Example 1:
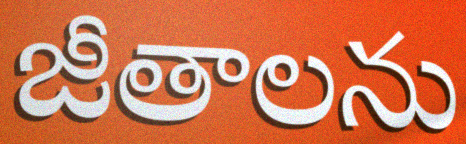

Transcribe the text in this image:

జీతాలను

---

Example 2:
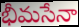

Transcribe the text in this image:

భీమసేనా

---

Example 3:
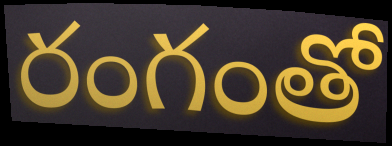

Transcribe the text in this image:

రంగంతో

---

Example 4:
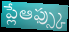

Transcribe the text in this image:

ప్లేఆఫ్స్కు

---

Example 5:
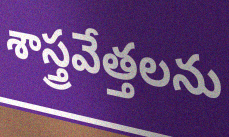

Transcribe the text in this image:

శాస్త్రవేత్తలను